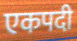
एकपदी